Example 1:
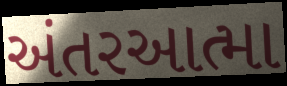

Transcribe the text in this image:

અંતરઆત્મા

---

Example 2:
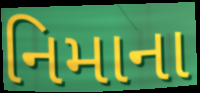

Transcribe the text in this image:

નિમાના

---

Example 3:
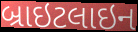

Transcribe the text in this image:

બ્રાઇટલાઇન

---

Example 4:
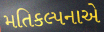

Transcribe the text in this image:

મતિકલ્પનાએ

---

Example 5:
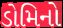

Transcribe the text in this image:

ડોમિનો